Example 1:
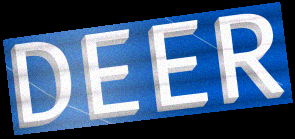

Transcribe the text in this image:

DEER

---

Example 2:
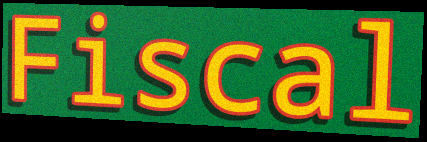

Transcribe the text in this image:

Fiscal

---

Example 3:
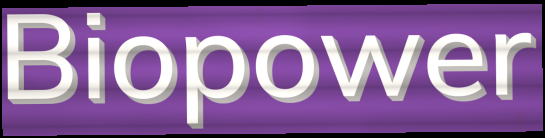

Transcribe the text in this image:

Biopower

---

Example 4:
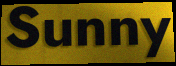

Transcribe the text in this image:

Sunny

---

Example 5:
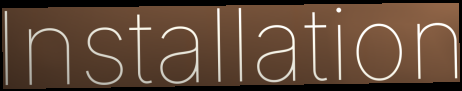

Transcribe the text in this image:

Installation